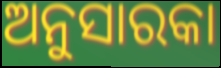
ଅନୁସାରକା